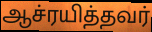
ஆச்ரயித்தவர்